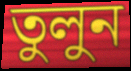
তুলুন